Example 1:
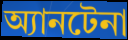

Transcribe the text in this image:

অ্যানটেনা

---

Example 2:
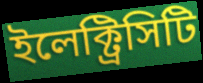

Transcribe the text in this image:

ইলেক্ট্রিসিটি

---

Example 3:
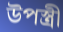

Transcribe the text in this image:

উপস্ত্রী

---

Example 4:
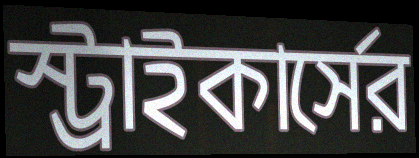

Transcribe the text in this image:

স্ট্রাইকার্সের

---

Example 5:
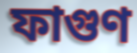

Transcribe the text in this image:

ফাগুণ